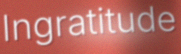
Ingratitude